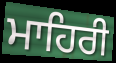
ਮਾਹਿਰੀ